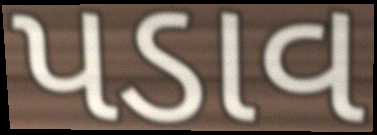
પડાવ